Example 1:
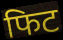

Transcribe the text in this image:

फिट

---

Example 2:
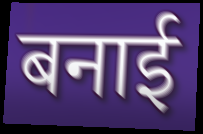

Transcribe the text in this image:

बनाई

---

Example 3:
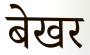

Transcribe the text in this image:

बेखर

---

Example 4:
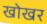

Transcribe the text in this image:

खोखर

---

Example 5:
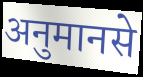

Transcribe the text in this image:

अनुमानसे